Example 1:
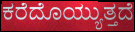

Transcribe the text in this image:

ಕರೆದೊಯ್ಯುತ್ತದೆ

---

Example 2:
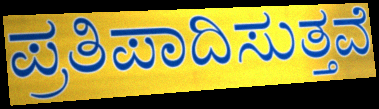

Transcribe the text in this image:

ಪ್ರತಿಪಾದಿಸುತ್ತವೆ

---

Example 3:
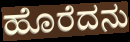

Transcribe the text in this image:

ಹೊರೆದನು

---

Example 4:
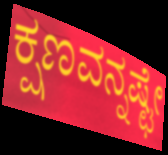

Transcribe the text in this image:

ಕ್ಷಣವನ್ನಷ್ಟೇ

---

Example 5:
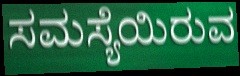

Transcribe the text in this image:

ಸಮಸ್ಯೆಯಿರುವ